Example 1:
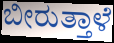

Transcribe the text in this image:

ಬೀರುತ್ತಾಳೆ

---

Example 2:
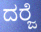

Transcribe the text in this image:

ದರ‍್ಜೆ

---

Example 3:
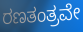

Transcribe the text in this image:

ರಣತಂತ್ರವೇ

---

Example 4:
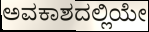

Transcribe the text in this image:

ಅವಕಾಶದಲ್ಲಿಯೇ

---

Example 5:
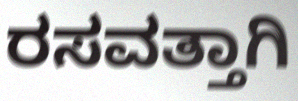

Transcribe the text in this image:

ರಸವತ್ತಾಗಿ